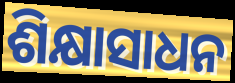
ଶିକ୍ଷାସାଧନ